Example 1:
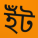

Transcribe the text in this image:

ইঁট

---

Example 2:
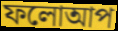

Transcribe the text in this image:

ফলোআপ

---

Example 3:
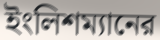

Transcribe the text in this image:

ইংলিশম্যানের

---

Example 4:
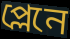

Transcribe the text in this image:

প্লেনে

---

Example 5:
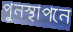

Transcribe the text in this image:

পুনস্থাপনে